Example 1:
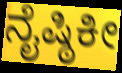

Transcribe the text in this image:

ನೈಷ್ಠಿಕೀ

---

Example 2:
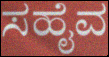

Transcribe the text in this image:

ಸಹೈವ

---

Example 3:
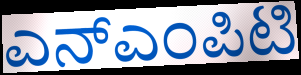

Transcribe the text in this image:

ಎನ್ಎಂಪಿಟಿ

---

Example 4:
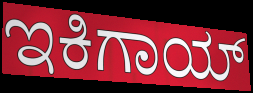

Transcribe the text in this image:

ಇಕಿಗಾಯ್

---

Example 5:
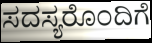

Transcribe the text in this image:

ಸದಸ್ಯರೊಂದಿಗೆ